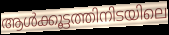
ആൾക്കൂട്ടത്തിനിടയിലെ